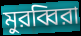
মুরব্বিরা